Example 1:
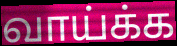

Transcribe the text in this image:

வாய்க்க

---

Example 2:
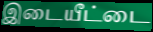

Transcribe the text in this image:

இடையீட்டை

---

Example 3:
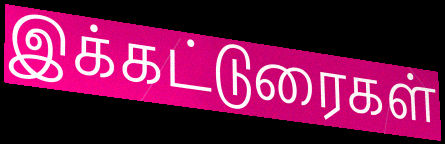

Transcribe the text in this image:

இக்கட்டுரைகள்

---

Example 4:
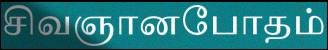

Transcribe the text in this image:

சிவஞானபோதம்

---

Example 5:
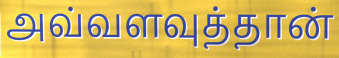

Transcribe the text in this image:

அவ்வளவுத்தான்